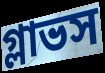
গ্লাভস